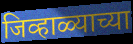
जिव्हाळ्याच्या